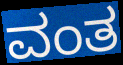
ವಂತ